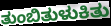
ತುಂಬಿತುಳುಕಿತು